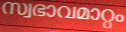
സ്വഭാവമാറ്റം